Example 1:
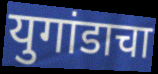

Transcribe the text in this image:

युगांडाचा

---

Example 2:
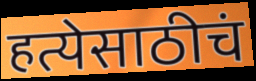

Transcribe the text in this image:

हत्येसाठीचं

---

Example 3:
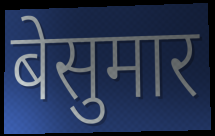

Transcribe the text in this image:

बेसुमार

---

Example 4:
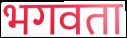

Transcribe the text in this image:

भगवता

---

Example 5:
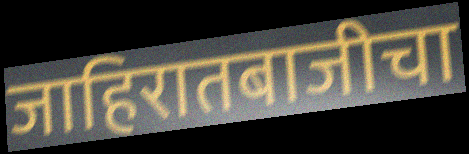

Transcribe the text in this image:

जाहिरातबाजीचा